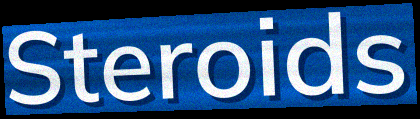
Steroids